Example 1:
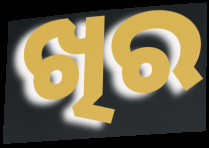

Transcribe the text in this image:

ଖିର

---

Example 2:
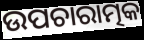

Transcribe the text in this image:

ଉପଚାରାତ୍ମକ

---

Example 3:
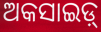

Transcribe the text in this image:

ଅକସାଇଡ଼୍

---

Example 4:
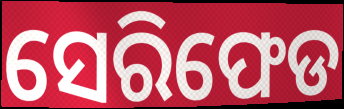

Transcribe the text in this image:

ସେରିଫେଡ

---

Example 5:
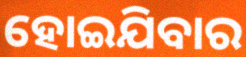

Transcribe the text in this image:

ହୋଇଯିବାର